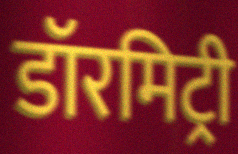
डॉरमिट्री